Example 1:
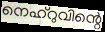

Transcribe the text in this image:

നെഹ്റുവിന്റെ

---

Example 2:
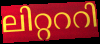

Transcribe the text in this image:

ലിറ്റററി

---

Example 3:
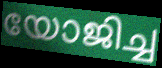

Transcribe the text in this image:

യോജിച്ച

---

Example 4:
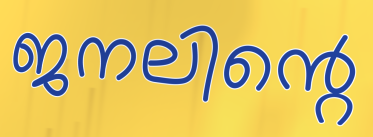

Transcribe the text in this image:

ജനലിന്റെ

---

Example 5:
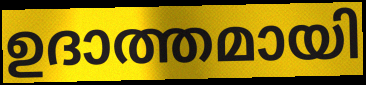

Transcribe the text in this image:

ഉദാത്തമായി